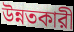
উন্নতকারী